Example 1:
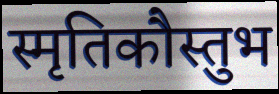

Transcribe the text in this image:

स्मृतिकौस्तुभ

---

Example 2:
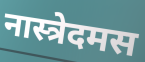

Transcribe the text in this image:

नास्त्रेदमस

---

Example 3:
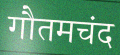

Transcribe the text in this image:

गौतमचंद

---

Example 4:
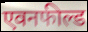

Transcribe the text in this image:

एवनफील्ड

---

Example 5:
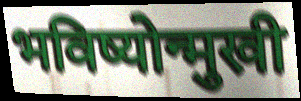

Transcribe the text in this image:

भविष्योन्मुखी